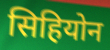
सिहियोन